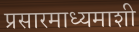
प्रसारमाध्यमाशी